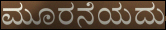
ಮೂರನೆಯದು